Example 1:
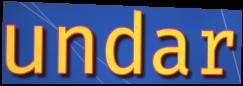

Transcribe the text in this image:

undar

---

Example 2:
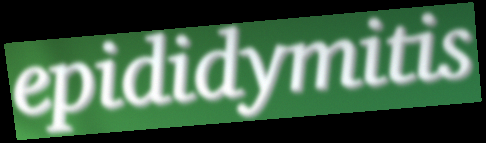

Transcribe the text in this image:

epididymitis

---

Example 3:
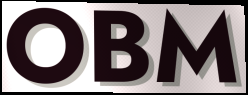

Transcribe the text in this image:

OBM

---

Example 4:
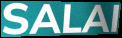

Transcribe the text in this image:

SALAI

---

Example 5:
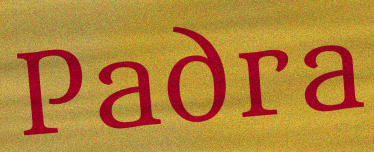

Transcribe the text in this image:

Padra